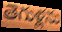
తెగుళ్లను